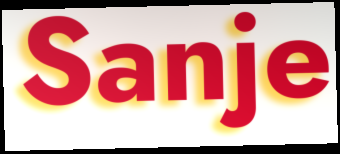
Sanje